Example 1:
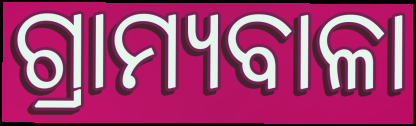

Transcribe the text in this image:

ଗ୍ରାମ୍ୟବାଳା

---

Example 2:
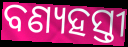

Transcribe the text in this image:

ବଣ୍ୟହସ୍ତୀ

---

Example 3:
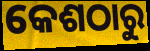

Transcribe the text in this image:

କେଶଠାରୁ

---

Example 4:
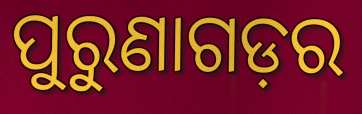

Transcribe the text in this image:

ପୁରୁଣାଗଡ଼ର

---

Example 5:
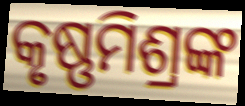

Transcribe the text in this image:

କୃଷ୍ଣମିଶ୍ରଙ୍କ